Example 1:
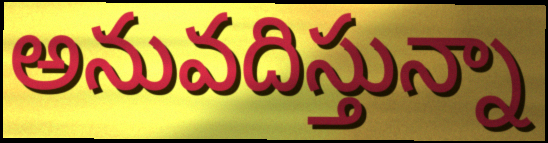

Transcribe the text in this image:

అనువదిస్తున్నా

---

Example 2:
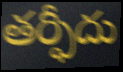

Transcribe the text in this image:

తర్ఫీదు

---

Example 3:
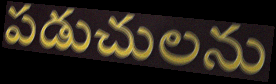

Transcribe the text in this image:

పడుచులను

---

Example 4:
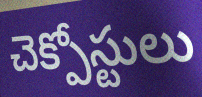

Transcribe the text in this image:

చెక్పోస్టులు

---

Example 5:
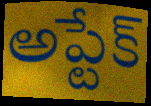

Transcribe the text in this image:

అప్టేక్